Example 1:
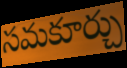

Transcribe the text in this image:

సమకూర్చు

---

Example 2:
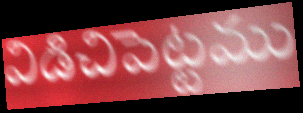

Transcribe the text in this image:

విడిచిపెట్టము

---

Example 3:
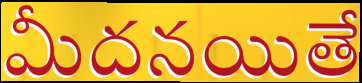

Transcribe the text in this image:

మీదనయితే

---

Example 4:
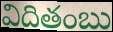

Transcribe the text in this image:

విదితంబు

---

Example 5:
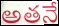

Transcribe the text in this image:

అతనే